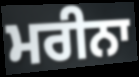
ਮਰੀਨਾ